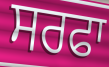
ਸਰਫਾ